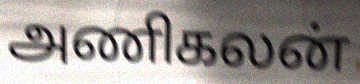
அணிகலன்